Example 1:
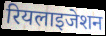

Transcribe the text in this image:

रियलाइजेशन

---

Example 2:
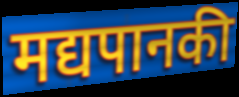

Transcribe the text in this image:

मद्यपानकी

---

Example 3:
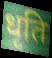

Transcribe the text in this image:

धृति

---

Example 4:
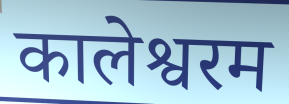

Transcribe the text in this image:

कालेश्वरम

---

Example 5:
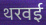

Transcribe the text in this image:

थरवई